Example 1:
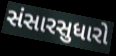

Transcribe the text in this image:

સંસારસુધારો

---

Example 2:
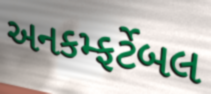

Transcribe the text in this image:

અનકમ્ફર્ટેબલ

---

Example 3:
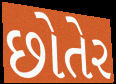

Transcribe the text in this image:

છોતેર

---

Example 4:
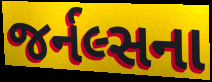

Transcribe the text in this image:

જર્નલ્સના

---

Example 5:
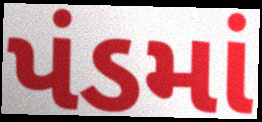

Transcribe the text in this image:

પંડમાં